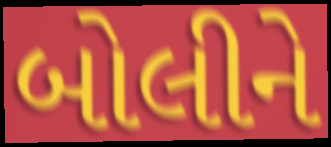
બોલીને